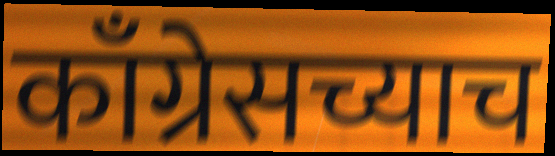
काँग्रेसच्याच